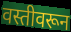
वस्तीवरून